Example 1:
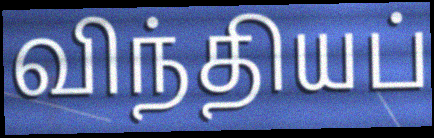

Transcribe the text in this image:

விந்தியப்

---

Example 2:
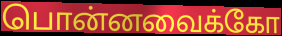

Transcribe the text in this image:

பொன்னவைக்கோ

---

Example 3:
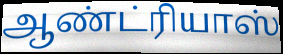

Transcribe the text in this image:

ஆண்ட்ரியாஸ்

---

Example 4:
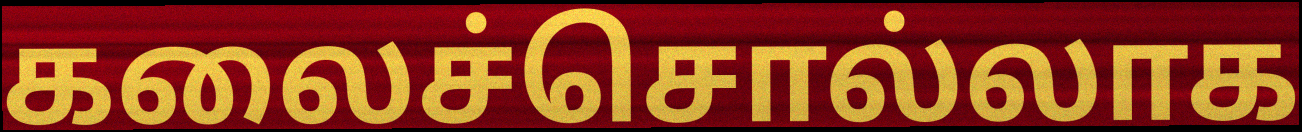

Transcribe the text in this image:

கலைச்சொல்லாக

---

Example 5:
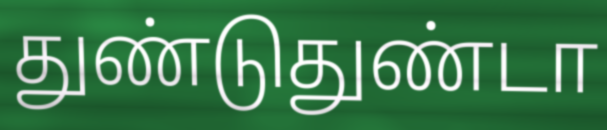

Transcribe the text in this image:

துண்டுதுண்டா